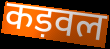
कड़वल